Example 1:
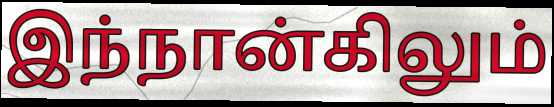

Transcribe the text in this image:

இந்நான்கிலும்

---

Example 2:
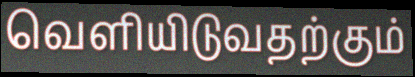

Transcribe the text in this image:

வெளியிடுவதற்கும்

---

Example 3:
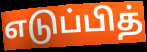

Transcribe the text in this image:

எடுப்பித்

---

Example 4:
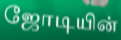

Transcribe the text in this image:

ஜோடியின்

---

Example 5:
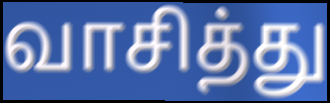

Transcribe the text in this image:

வாசித்து